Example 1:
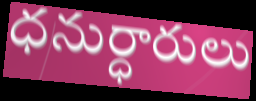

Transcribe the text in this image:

ధనుర్ధారులు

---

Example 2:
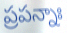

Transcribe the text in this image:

ప్రపన్నాః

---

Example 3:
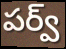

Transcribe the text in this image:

పర్వ్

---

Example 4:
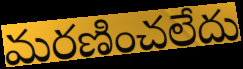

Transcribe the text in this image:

మరణించలేదు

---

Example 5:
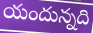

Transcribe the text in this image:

యందున్నది